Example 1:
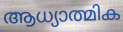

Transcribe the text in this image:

ആധ്യാത്മിക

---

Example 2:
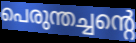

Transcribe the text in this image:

പെരുന്തച്ചന്റെ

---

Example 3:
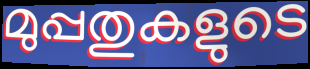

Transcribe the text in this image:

മുപ്പതുകളുടെ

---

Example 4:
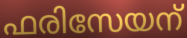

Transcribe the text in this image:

ഫരിസേയന്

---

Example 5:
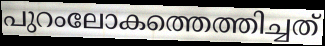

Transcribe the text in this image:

പുറംലോകത്തെത്തിച്ചത്